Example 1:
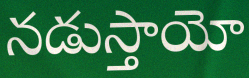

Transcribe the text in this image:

నడుస్తాయో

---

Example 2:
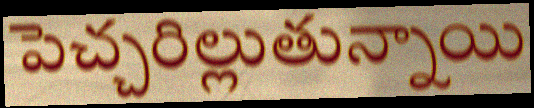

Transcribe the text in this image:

పెచ్చరిల్లుతున్నాయి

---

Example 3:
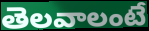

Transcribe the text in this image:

తెలవాలంటే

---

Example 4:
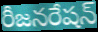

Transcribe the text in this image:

రీజనరేషన్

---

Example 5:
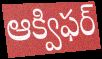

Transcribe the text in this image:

ఆక్విఫర్